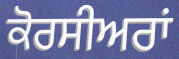
ਕੋਰਸੀਅਰਾਂ